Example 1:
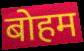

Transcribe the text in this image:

बोहम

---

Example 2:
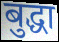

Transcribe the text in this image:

बुद्धा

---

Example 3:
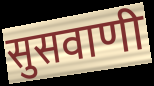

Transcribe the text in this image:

सुसवाणी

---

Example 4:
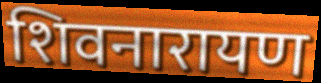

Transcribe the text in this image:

शिवनारायण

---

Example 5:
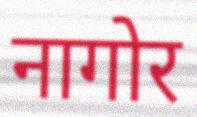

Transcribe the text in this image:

नागोर